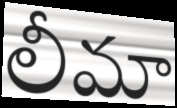
లీమా